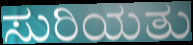
ಸುರಿಯತು